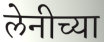
लेनीच्या